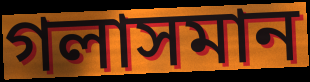
গলাসমান